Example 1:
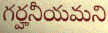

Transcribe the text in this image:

గర్హనీయమని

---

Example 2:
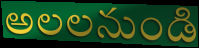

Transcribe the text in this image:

అలలనుండి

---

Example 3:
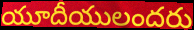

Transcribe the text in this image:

యూదీయులందరు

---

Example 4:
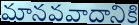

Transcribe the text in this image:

మానవవాదానికి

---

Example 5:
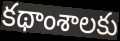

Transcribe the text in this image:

కథాంశాలకు